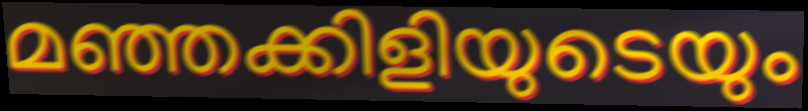
മഞ്ഞക്കിളിയുടെയും